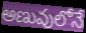
అణువులోనే